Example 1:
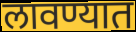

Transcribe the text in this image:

लावण्यात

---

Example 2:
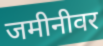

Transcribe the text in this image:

जमीनीवर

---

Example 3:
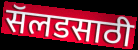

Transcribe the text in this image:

सॅलडसाठी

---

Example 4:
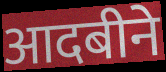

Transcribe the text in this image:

आदबीने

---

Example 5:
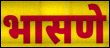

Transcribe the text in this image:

भासणे